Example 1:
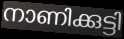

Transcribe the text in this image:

നാണിക്കുട്ടി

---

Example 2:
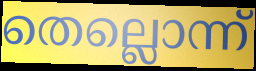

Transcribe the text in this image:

തെല്ലൊന്ന്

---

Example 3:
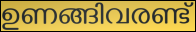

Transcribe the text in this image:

ഉണങ്ങിവരണ്ട്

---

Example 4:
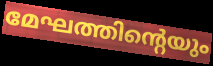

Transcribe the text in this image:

മേഘത്തിന്റെയും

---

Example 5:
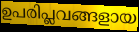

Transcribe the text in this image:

ഉപരിപ്ലവങ്ങളായ